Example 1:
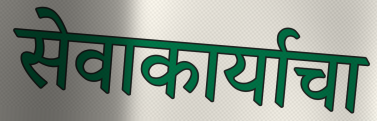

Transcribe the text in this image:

सेवाकार्याचा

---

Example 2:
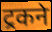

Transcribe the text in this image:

ट्रकने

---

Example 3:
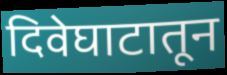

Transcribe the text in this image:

दिवेघाटातून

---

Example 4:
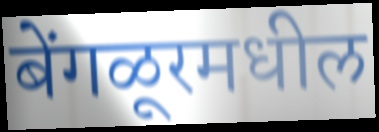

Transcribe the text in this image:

बेंगळूरमधील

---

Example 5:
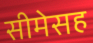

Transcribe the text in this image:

सीमेसह